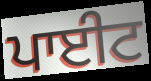
ਪਾਈਟ